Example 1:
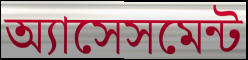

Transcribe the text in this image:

অ্যাসেসমেন্ট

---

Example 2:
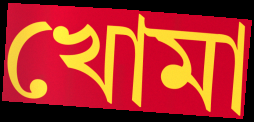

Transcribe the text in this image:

খোমা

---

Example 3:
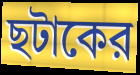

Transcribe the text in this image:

ছটাকের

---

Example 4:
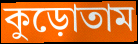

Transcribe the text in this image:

কুড়োতাম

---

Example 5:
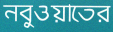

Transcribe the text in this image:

নবুওয়াতের